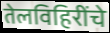
तेलविहिरींचे